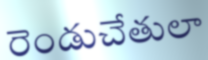
రెండుచేతులా